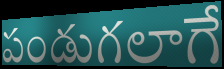
పండుగలాగే